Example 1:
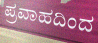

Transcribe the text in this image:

ಪ್ರವಾಹದಿಂದ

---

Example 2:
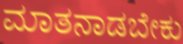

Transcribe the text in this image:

ಮಾತನಾಡಬೇಕು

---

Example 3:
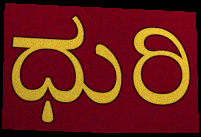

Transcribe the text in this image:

ಧುರಿ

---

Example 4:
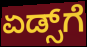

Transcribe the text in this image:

ಏಡ್ಸ್‌ಗೆ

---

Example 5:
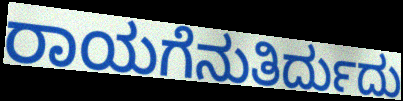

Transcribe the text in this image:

ರಾಯಗೆನುತಿರ್ದುದು